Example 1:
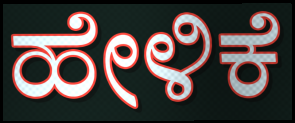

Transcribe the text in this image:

ಹೇಳಿಕೆ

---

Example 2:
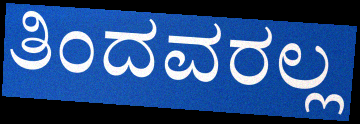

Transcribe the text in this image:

ತಿಂದವರಲ್ಲ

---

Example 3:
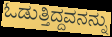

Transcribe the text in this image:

ಓಡುತ್ತಿದ್ದವನನ್ನು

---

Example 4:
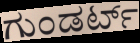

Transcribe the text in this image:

ಗುಂಡರ್ಟ್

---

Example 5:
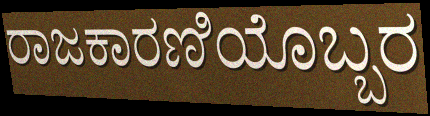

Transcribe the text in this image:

ರಾಜಕಾರಣಿಯೊಬ್ಬರ